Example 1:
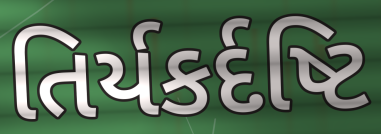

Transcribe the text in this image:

તિર્યકર્દષ્ટિ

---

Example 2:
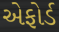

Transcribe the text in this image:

એફોર્ડ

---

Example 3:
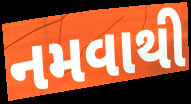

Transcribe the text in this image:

નમવાથી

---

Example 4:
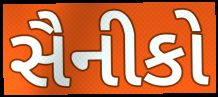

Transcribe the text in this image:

સૈનીકો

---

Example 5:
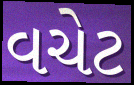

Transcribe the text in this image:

વચેટ